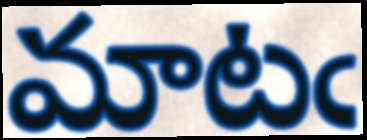
మాటఁ